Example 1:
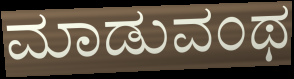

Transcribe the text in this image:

ಮಾಡುವಂಥ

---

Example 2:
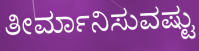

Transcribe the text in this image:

ತೀರ್ಮಾನಿಸುವಷ್ಟು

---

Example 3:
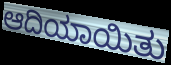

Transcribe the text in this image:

ಆದಿಯಾಯಿತು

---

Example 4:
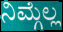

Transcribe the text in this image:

ನಿಮ್ಗೆಲ್ಲ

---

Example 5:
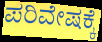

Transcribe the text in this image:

ಪರಿವೇಷಕ್ಕೆ